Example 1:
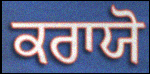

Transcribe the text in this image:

ਕਰਾਯੋ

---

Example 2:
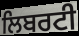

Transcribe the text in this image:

ਲਿਬਰਟੀ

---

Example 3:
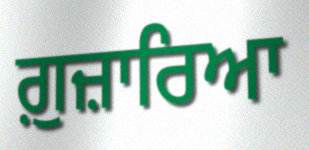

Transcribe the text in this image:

ਗ਼ੁਜ਼ਾਰਿਆ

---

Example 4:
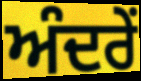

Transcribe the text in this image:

ਅੰਦਰੇਂ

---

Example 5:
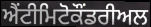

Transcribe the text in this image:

ਐਂਟੀਮਿਟੋਕੌਂਡਰੀਅਲ